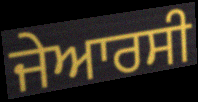
ਜੇਆਰਸੀ